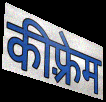
कीफ़्रेम